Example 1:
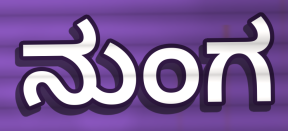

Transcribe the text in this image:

ನುಂಗ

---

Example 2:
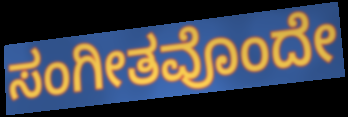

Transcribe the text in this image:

ಸಂಗೀತವೊಂದೇ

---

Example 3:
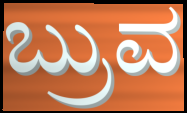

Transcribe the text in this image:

ಬ್ರುವ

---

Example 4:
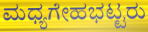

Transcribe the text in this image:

ಮಧ್ಯಗೇಹಭಟ್ಟರು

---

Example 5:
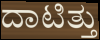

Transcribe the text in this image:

ದಾಟಿತ್ತು